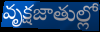
వృక్షజాతుల్లో